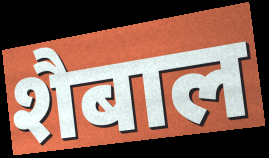
शैबाल